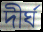
দীৰ্ঘ